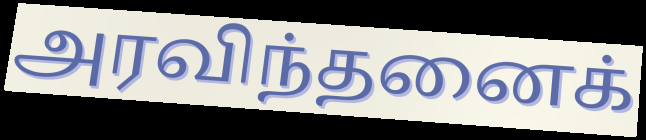
அரவிந்தனைக்